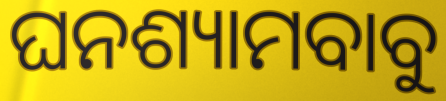
ଘନଶ୍ୟାମବାବୁ